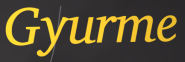
Gyurme